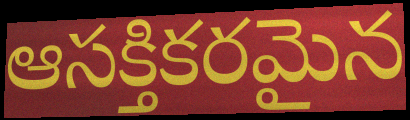
ఆసక్తికరమైన